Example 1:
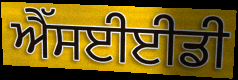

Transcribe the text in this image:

ਐੱਸਈਈਡੀ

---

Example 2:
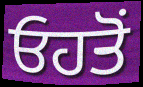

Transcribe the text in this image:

ਓਹਤੋਂ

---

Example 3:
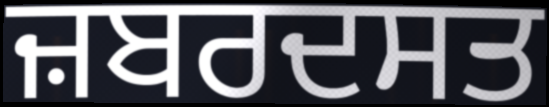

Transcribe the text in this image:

ਜ਼ਬਰਦਸਤ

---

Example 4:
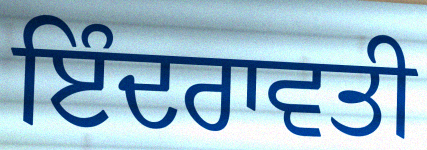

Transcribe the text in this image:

ਇੰਦਰਾਵਤੀ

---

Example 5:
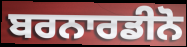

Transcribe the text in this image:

ਬਰਨਾਰਡੀਨੋ